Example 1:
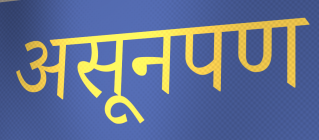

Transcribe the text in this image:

असूनपण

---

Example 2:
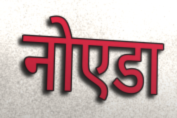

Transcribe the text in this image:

नोएडा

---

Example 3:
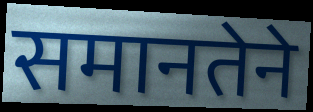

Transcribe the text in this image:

समानतेने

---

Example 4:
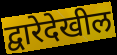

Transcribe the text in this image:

द्वारेदेखील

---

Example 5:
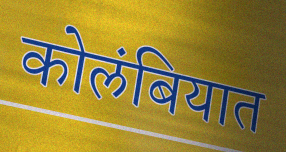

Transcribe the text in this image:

कोलंबियात